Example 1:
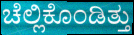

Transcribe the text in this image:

ಚೆಲ್ಲಿಕೊಂಡಿತ್ತು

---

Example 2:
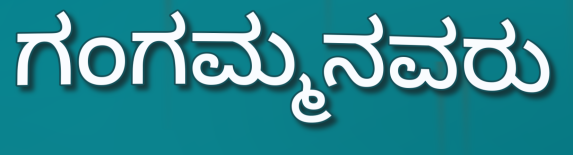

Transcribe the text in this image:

ಗಂಗಮ್ಮನವರು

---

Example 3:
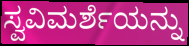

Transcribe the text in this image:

ಸ್ವವಿಮರ್ಶೆಯನ್ನು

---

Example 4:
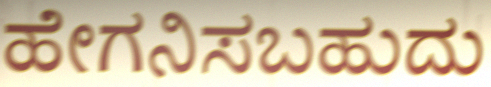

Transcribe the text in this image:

ಹೇಗನಿಸಬಹುದು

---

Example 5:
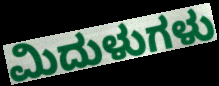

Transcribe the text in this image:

ಮಿದುಳುಗಳು